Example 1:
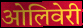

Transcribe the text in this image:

ओलिवेरी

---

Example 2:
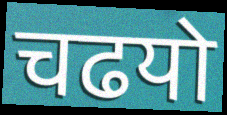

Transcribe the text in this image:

चढयो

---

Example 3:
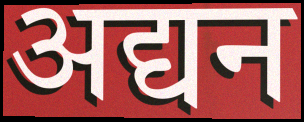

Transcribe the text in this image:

अद्यन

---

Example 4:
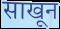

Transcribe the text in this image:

साखून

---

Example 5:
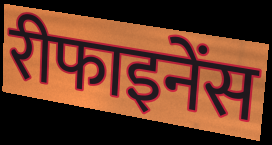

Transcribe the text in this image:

रीफाइनेंस